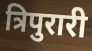
त्रिपुरारी